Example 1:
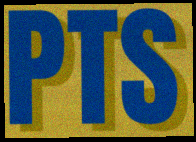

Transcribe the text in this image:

PTS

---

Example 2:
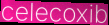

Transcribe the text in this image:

celecoxib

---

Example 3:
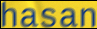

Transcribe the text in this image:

hasan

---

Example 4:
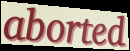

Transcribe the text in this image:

aborted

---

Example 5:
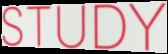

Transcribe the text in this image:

STUDY